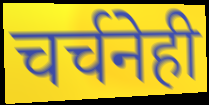
चर्चनेही